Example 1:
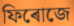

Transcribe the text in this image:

ফিৰোজে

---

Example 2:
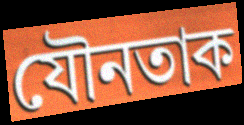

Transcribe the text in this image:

যৌনতাক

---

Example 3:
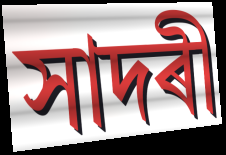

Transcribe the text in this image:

সাদৰী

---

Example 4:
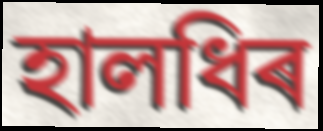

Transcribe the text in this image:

হালধিৰ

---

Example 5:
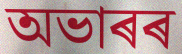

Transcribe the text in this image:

অভাৰৰ